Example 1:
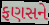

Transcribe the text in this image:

ફણસને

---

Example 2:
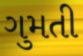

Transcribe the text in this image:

ગુમતી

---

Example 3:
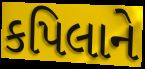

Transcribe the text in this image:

કપિલાને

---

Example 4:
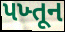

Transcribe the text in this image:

પખ્તૂન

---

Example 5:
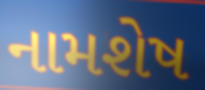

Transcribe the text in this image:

નામશેષ